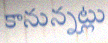
కానున్నట్లు